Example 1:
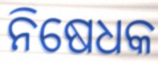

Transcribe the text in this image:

ନିଷେଧକ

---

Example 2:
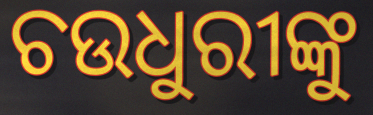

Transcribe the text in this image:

ଚଉଧୁରୀଙ୍କୁ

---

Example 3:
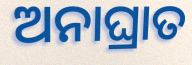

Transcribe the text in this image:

ଅନାଘ୍ରାତ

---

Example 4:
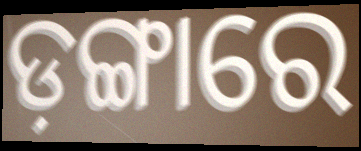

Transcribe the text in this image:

ଡ଼ଙ୍ଗାରେ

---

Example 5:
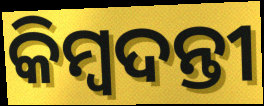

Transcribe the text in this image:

କିମ୍ଵଦନ୍ତୀ